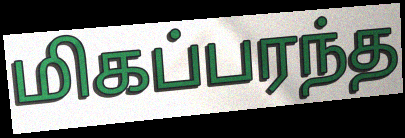
மிகப்பரந்த